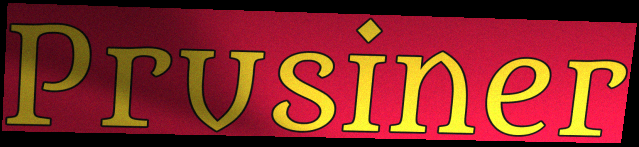
Prusiner